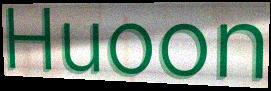
Huoon